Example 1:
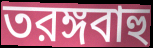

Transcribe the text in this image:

তরঙ্গবাহু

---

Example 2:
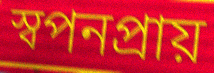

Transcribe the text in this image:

স্বপনপ্রায়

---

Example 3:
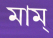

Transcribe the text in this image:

মাম্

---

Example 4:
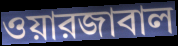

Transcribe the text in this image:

ওয়ারজাবাল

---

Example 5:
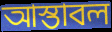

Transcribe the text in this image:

আস্তাবল